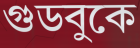
গুডবুকে